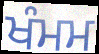
ਖੰਮਮ